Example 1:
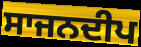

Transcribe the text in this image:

ਸਾਜਨਦੀਪ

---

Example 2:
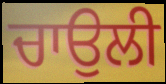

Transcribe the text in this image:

ਚਾਉਲੀ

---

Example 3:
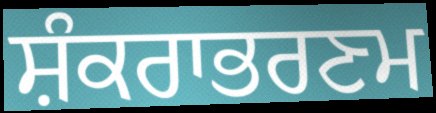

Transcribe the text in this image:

ਸ਼ੰਕਰਾਭਰਣਮ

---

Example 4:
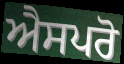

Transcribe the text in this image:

ਐਸਪਰੋ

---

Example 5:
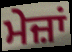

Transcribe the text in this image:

ਮੇਜ਼ਾਂ